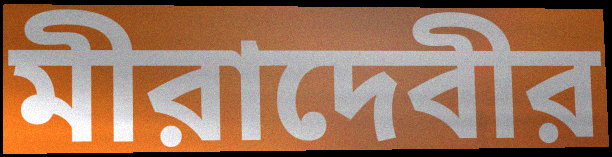
মীরাদেবীর